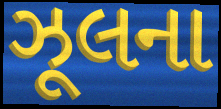
ઝૂલના